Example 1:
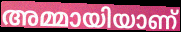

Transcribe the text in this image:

അമ്മായിയാണ്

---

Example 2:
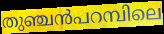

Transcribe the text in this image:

തുഞ്ചൻപറമ്പിലെ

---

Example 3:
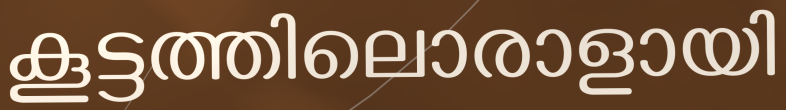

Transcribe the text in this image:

കൂട്ടത്തിലൊരാളായി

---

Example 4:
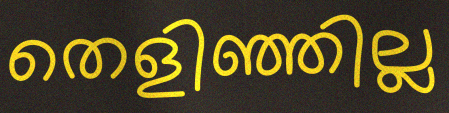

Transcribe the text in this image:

തെളിഞ്ഞില്ല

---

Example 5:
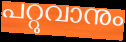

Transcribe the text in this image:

പറ്റുവാനും